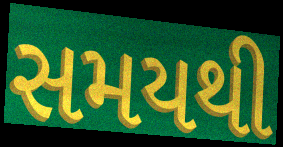
સમયથી